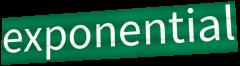
exponential